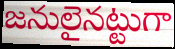
జనులైనట్టుగా